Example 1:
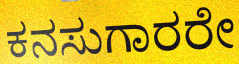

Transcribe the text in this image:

ಕನಸುಗಾರರೇ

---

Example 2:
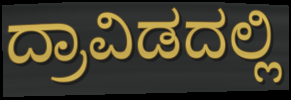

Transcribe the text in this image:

ದ್ರಾವಿಡದಲ್ಲಿ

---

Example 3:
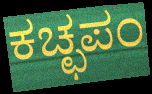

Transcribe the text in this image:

ಕಚ್ಛಪಂ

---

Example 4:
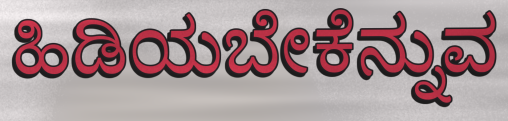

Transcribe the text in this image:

ಹಿಡಿಯಬೇಕೆನ್ನುವ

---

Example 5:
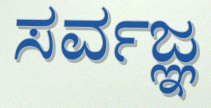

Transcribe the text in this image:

ಸರ್ವಜ್ಞ